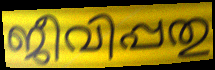
ജീവിപ്പതു